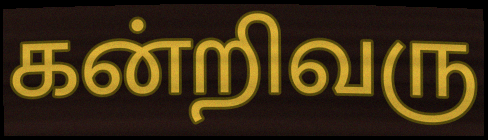
கன்றிவரு